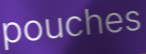
pouches